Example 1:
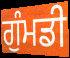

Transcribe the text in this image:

ਗੁੰਮਡੀ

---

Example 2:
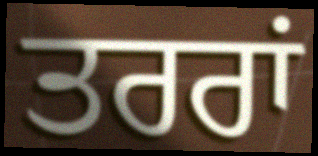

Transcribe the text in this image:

ਤਰਰਾਂ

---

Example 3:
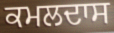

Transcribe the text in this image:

ਕਮਲਦਾਸ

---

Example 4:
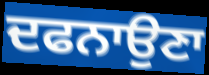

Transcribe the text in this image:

ਦਫਨਾਉਣਾ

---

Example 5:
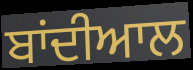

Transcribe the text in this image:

ਬਾਂਦੀਆਲ